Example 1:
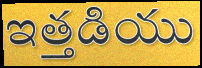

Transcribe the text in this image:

ఇత్తడియు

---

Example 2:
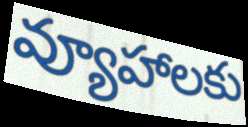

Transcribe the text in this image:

వ్యూహాలకు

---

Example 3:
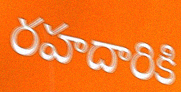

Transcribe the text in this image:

రహదారికి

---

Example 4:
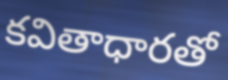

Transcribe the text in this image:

కవితాధారతో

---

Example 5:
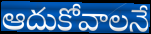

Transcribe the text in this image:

ఆదుకోవాలనే